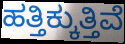
ಹತ್ತಿಕ್ಕುತ್ತಿವೆ